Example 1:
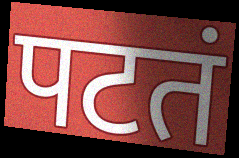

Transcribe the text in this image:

पटतं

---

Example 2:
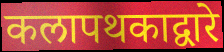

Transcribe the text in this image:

कलापथकाद्वारे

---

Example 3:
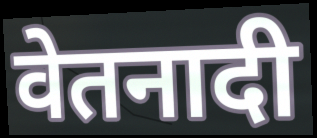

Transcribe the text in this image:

वेतनादी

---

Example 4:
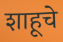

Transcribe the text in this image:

शाहूचे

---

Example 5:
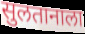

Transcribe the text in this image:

सुलतानाला